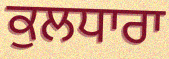
ਕੁਲਧਾਰਾ